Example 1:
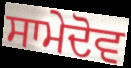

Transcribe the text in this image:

ਸਾਮੇਦੋਵ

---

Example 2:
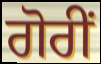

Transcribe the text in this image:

ਗੋਰੀਂ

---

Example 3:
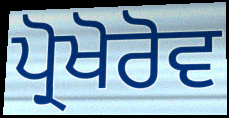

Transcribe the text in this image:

ਪ੍ਰੋਖੋਰੋਵ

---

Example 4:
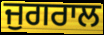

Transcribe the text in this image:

ਜੁਗਰਾਲ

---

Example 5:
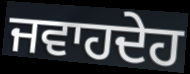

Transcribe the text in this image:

ਜਵਾਹਦੇਹ